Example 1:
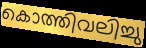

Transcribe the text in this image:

കൊത്തിവലിച്ചു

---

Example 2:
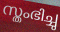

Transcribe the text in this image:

സ്തംഭിച്ചു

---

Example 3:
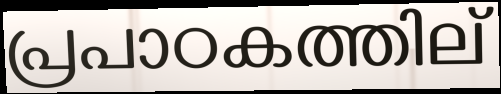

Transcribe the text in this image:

പ്രപാഠകത്തില്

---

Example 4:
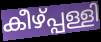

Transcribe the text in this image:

കീഴ്പ്പള്ളി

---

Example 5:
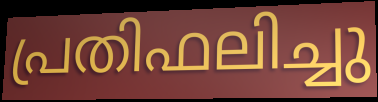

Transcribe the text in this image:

പ്രതിഫലിച്ചു